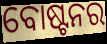
ବୋଷ୍ଟନର